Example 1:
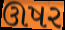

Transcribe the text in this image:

ઊષર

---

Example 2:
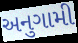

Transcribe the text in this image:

અનુગામી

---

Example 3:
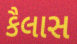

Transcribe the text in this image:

કૈલાસ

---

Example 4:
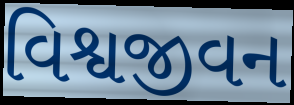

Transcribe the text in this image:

વિશ્વજીવન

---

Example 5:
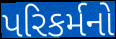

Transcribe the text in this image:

પરિકર્મનો